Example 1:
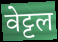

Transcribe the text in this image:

वेट्टल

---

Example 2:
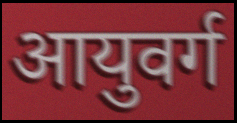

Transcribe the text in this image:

आयुवर्ग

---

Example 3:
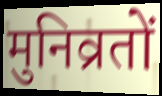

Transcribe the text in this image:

मुनिव्रतों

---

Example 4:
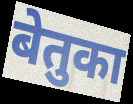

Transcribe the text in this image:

बेतुका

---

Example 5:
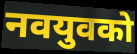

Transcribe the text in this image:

नवयुवको